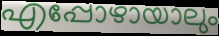
എപ്പോഴായാലും